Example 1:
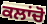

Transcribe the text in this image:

ਕਲਾਂਚੋ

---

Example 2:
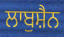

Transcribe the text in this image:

ਲਾਬੁਸ਼ੈਨ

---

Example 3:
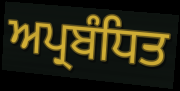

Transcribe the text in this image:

ਅਪ੍ਰਬੰਧਿਤ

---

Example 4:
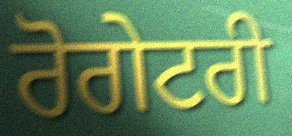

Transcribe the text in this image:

ਰੋਗੇਟਰੀ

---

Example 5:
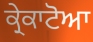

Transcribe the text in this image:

ਕ੍ਰੇਕਾਟੋਆ